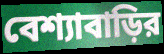
বেশ্যাবাড়ির